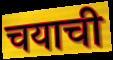
चयाची